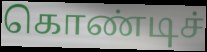
கொண்டிச்